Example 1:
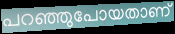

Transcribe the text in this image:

പറഞ്ഞുപോയതാണ്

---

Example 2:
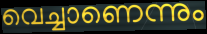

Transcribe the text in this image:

വെച്ചാണെന്നും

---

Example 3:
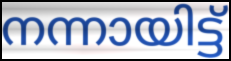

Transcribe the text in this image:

നന്നായിട്ട്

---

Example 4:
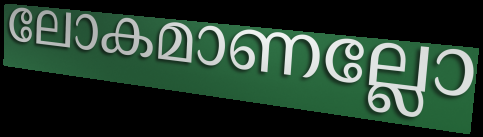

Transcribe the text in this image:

ലോകമാണല്ലോ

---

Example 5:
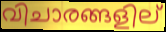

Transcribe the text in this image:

വിചാരങ്ങളില്